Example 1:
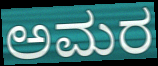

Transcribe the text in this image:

ಅಮರ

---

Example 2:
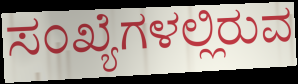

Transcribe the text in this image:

ಸಂಖ್ಯೆಗಳಲ್ಲಿರುವ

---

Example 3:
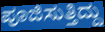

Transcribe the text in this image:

ಪೂಜಿಸುತ್ತಿದ್ದು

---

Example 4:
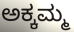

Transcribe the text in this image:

ಅಕ್ಕಮ್ಮ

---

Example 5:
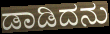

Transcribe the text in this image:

ಡಾಡಿದನು